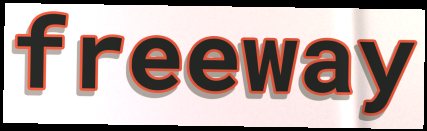
freeway